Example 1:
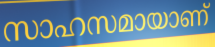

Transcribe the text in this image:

സാഹസമായാണ്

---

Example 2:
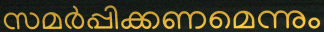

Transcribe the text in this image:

സമർപ്പിക്കണമെന്നും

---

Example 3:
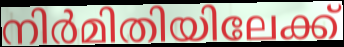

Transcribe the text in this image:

നിർമിതിയിലേക്ക്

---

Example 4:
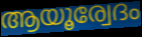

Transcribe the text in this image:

ആയൂര്വേദം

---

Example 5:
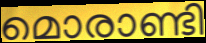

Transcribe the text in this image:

മൊരാണ്ടി